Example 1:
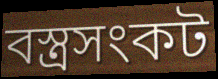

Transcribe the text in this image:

বস্ত্রসংকট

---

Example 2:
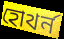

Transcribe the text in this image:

হোথর্ন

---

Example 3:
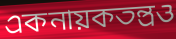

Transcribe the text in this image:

একনায়কতন্ত্রও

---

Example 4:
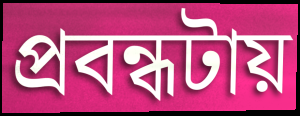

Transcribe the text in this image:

প্রবন্ধটায়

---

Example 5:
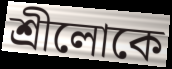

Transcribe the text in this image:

শ্রীলোকে